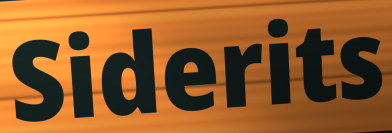
Siderits